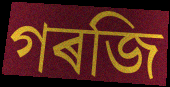
গৰজি